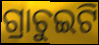
ଗ୍ରାଚୁଇଟି